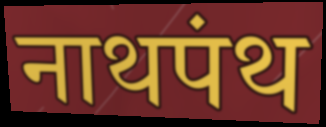
नाथपंथ